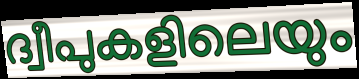
ദ്വീപുകളിലെയും